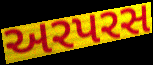
અરપરસ